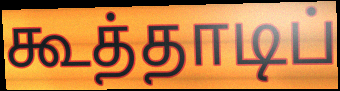
கூத்தாடிப்